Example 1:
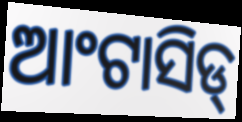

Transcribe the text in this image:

ଆଂଟାସିଡ୍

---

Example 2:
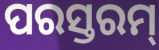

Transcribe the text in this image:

ପରସ୍ତରମ୍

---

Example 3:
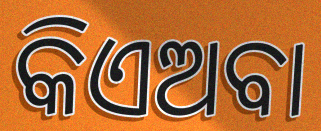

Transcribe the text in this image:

କିଏଅବା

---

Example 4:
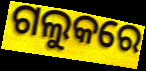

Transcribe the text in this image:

ଗଲୁକରେ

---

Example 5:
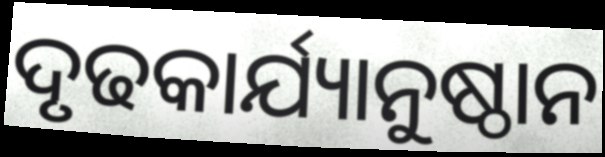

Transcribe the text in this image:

ଦୃଢକାର୍ଯ୍ୟାନୁଷ୍ଠାନ